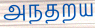
அநதறய